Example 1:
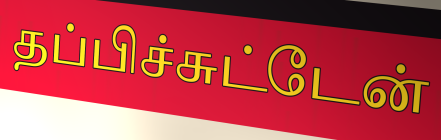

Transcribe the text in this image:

தப்பிச்சுட்டேன்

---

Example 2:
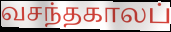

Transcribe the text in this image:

வசந்தகாலப்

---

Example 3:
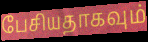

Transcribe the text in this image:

பேசியதாகவும்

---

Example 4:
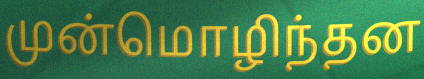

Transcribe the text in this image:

முன்மொழிந்தன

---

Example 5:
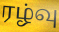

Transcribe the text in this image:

ரழ்வு